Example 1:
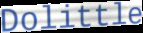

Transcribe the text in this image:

Dolittle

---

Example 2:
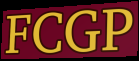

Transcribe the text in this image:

FCGP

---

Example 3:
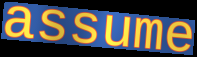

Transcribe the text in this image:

assume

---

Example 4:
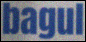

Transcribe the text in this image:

bagul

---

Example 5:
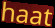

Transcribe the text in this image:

haat